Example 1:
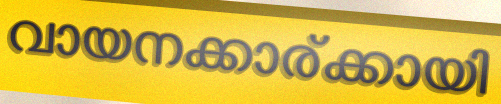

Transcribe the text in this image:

വായനക്കാര്ക്കായി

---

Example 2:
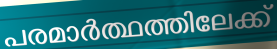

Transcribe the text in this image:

പരമാർത്ഥത്തിലേക്ക്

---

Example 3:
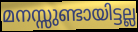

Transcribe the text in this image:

മനസ്സുണ്ടായിട്ടല്ല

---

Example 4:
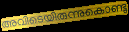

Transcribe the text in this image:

അവിടെയിരുന്നുകൊണ്ടു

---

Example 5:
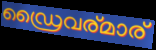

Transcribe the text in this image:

ഡ്രൈവര്മാര്